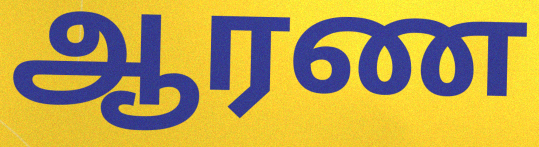
ஆரண